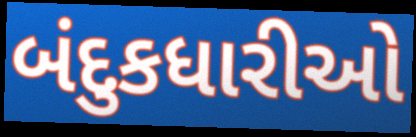
બંદુકધારીઓ